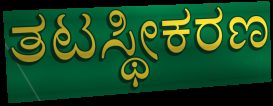
ತಟಸ್ಥೀಕರಣ